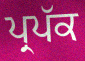
ਪ੍ਰਪੱਕ